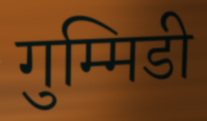
गुम्मिडी